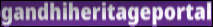
gandhiheritageportal